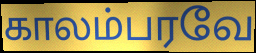
காலம்பரவே